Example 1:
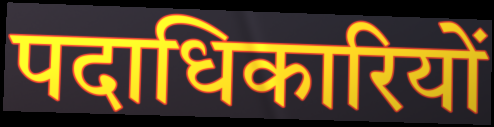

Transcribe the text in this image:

पदाधिकारियों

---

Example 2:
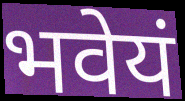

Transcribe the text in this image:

भवेयं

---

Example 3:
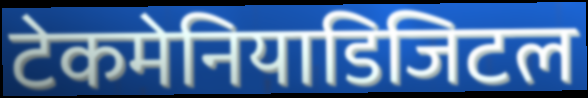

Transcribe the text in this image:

टेकमेनियाडिजिटल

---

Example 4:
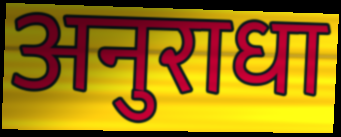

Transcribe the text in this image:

अनुराधा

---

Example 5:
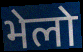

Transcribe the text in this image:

भेलो